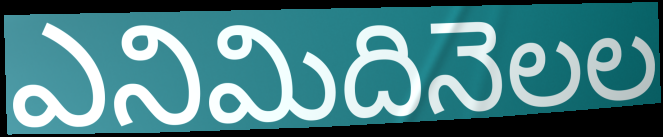
ఎనిమిదినెలల